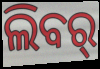
ଲିବର୍